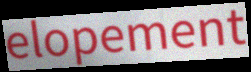
elopement